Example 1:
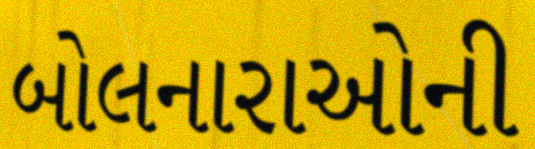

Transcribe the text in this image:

બોલનારાઓની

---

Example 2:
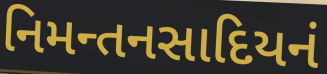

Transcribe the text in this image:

નિમન્તનસાદિયનં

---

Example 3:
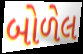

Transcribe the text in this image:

બોળેલ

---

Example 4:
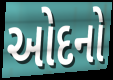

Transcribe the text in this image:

ઓદનો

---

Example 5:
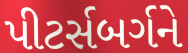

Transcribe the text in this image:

પીટર્સબર્ગને